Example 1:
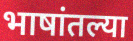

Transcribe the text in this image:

भाषांतल्या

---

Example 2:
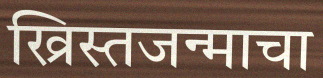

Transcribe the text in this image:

ख्रिस्तजन्माचा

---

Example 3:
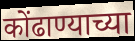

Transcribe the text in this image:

कोंढाण्याच्या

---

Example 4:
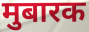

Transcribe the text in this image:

मुबारक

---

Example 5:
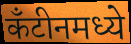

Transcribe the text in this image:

कँटीनमध्ये